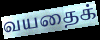
வயதைக்